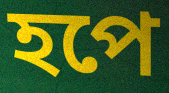
হপে